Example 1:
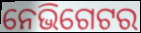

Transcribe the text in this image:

ନେଭିଗେଟର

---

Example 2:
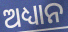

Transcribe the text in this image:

ଅଧ୍ୟାନ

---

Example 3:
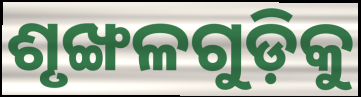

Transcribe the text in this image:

ଶୃଙ୍ଖଳଗୁଡ଼ିକୁ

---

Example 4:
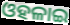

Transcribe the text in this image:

ଓହଳାଇ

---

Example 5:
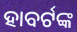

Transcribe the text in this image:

ହାବର୍ଟଙ୍କ